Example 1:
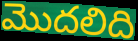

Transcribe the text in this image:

మొదలిది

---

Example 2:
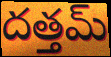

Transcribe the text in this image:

దత్తమ్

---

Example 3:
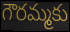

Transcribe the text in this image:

గౌరమ్మకు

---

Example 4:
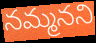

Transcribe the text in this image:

నమ్మనని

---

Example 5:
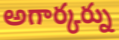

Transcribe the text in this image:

అగార్కర్ను